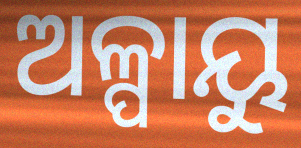
ଅଳ୍ପାୟୁ